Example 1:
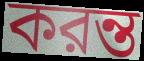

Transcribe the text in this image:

করন্ত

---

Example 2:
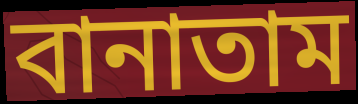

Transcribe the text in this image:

বানাতাম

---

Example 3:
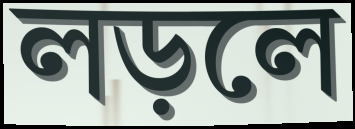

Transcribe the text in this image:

লড়লে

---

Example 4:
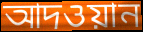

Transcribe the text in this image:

আদওয়ান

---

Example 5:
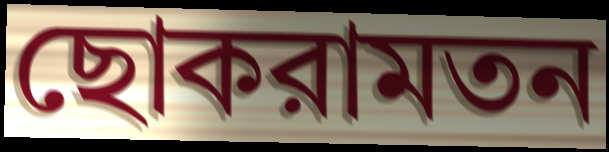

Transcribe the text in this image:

ছোকরামতন